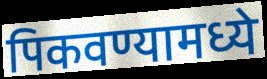
पिकवण्यामध्ये